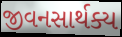
જીવનસાર્થક્ય